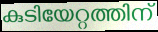
കുടിയേറ്റത്തിന്